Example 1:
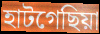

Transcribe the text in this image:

হাটগেছিয়া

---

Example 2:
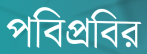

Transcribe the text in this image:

পবিপ্রবির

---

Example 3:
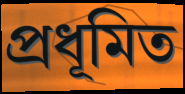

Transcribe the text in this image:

প্রধূমিত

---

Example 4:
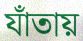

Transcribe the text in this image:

যাঁতায়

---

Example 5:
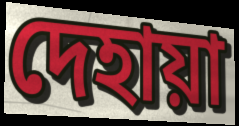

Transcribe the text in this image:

দেহায়া